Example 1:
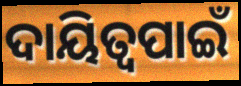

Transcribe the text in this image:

ଦାୟିତ୍ୱପାଇଁ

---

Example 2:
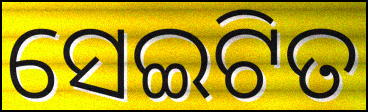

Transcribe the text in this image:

ସେଇଟିତ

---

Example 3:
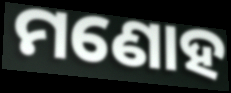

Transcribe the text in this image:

ମଣୋହ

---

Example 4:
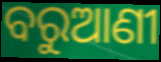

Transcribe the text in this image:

ବରୁଆଣୀ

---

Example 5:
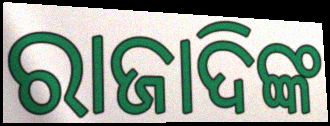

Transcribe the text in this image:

ରାଜାଦିଙ୍କ